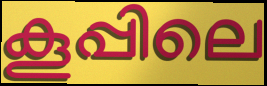
കൂപ്പിലെ